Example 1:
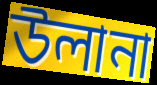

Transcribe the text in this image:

উলানা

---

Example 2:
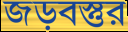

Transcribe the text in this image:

জড়বস্তুর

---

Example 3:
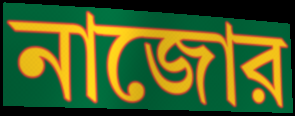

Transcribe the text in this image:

নাজোর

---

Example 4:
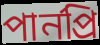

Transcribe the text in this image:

পার্নপ্রি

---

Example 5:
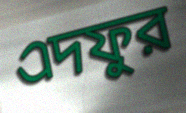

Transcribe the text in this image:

এদফুর